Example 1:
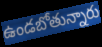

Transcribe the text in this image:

ఉండబోతున్నారు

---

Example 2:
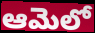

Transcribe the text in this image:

ఆమెలో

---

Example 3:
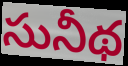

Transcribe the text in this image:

సునీథ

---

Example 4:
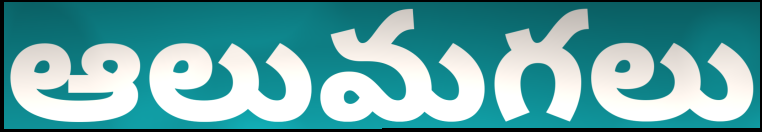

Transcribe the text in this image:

ఆలుమగలు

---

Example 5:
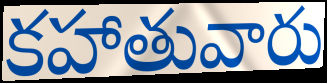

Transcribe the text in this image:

కహాతువారు